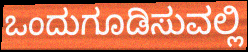
ಒಂದುಗೂಡಿಸುವಲ್ಲಿ